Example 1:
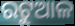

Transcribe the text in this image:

ରଟୁଆଳ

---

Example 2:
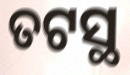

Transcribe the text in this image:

ତଟସ୍ଥ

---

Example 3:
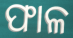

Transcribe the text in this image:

ଫାଳ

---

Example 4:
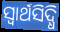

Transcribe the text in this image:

ସ୍ୱାର୍ଥସିଦ୍ଧି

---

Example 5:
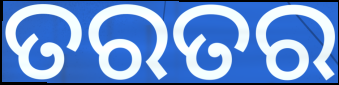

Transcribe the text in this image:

ତରତର